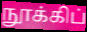
நூக்கிப்